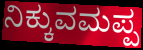
ನಿಕ್ಕುವಮಪ್ಪ